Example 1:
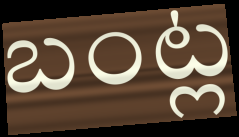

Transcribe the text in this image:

బంట్ల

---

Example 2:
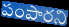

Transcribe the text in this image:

పంపారని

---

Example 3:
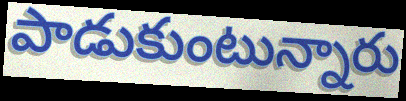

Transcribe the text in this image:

పాడుకుంటున్నారు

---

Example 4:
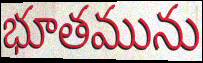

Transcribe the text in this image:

భూతమును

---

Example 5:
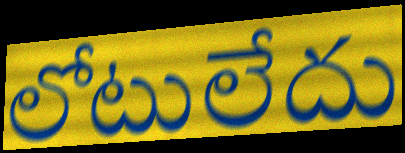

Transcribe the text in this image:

లోటులేదు